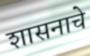
शासनाचे